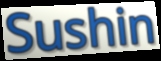
Sushin